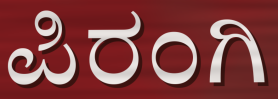
ಪಿರಂಗಿ